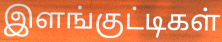
இளங்குட்டிகள்